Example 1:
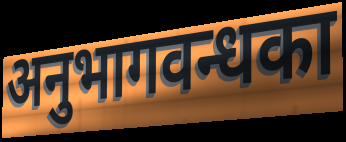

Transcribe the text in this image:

अनुभागवन्धका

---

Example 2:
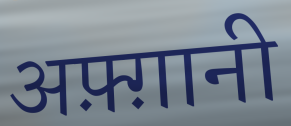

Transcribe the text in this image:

अफ़्ग़ानी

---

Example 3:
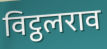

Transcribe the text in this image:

विट्ठलराव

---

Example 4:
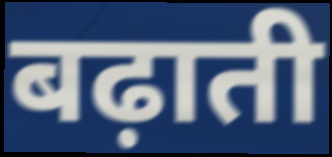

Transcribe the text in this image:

बढ़ाती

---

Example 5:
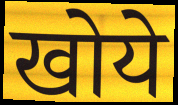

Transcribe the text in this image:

खोये